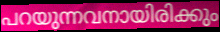
പറയുന്നവനായിരിക്കും